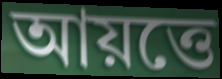
আয়ত্তে